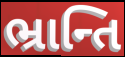
ભ્રાન્તિ